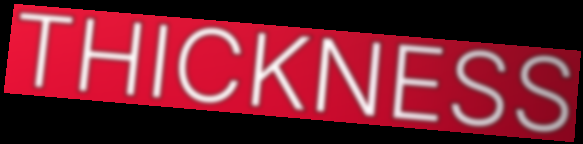
THICKNESS